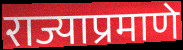
राज्याप्रमाणे